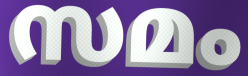
സമം